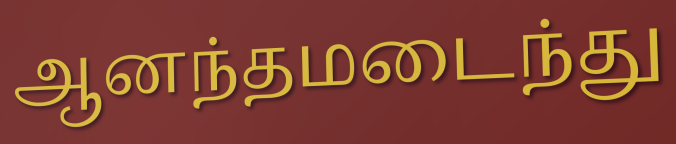
ஆனந்தமடைந்து